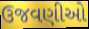
ઉજવણીઓ